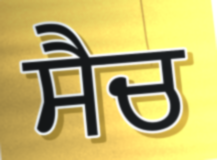
ਸੈਚ